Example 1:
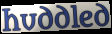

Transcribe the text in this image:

huddled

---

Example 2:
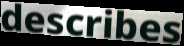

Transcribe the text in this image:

describes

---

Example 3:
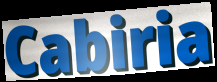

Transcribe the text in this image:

Cabiria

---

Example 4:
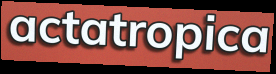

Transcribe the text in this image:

actatropica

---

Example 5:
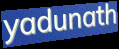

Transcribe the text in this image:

yadunath